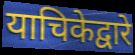
याचिकेद्वारे